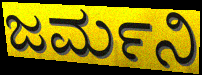
ಜರ್ಮನಿ